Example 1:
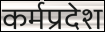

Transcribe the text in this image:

कर्मप्रदेश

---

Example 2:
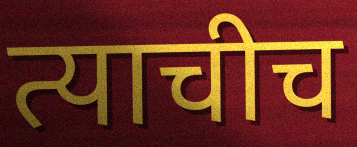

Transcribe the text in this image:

त्याचीच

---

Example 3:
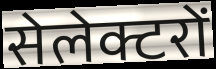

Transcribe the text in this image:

सेलेक्टरों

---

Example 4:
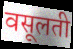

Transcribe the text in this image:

वसूलती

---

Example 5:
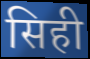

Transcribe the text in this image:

सिही